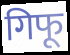
गिफू